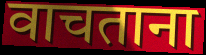
वाचताना